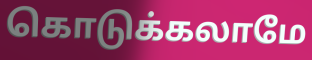
கொடுக்கலாமே